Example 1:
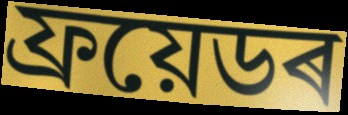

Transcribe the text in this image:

ফ্ৰয়েডৰ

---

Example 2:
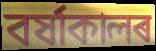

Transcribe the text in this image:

বৰ্ষাকালৰ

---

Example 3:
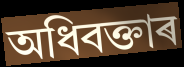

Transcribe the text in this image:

অধিবক্তাৰ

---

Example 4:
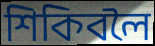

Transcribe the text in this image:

শিকিবলৈ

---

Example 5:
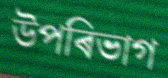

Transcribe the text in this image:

উপৰিভাগ